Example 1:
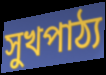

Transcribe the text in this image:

সুখপাঠ্য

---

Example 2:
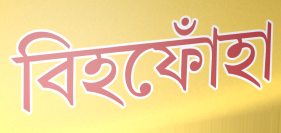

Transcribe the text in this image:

বিহফোঁহা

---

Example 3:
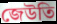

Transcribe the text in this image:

জেউতি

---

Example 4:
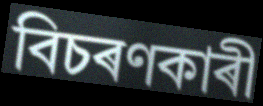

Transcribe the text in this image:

বিচৰণকাৰী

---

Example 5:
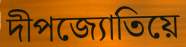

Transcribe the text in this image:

দীপজ্যোতিয়ে